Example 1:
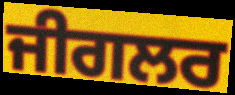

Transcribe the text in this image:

ਜੀਗਲਰ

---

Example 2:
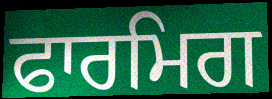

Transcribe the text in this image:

ਫਾਰਮਿਗ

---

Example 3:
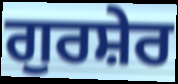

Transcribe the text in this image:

ਗੁਰਸ਼ੇਰ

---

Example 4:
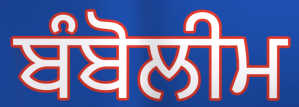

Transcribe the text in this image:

ਬੰਬੋਲੀਮ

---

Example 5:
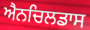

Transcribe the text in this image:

ਐਨਚਿਲਡਾਸ